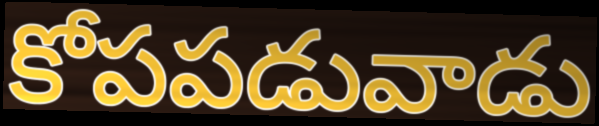
కోపపడువాడు